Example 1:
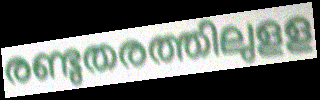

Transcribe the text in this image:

രണ്ടുതരത്തിലുളള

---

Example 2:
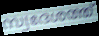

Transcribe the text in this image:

സ്വദേശത്ത്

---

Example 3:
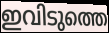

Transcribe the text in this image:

ഇവിടുത്തെ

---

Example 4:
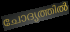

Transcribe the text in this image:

ചോദ്യത്തിൽ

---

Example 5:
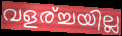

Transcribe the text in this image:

വളര്ച്ചയില്ല